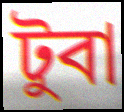
টুবা